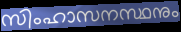
സിംഹാസനസ്ഥനും